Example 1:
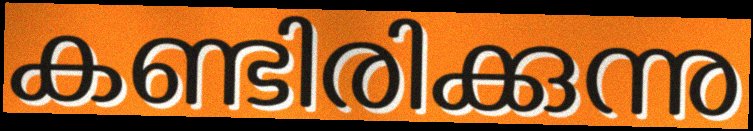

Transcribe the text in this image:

കണ്ടിരിക്കുന്നു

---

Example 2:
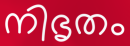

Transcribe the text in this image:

നിഭൃതം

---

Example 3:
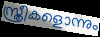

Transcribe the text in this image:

സ്ത്രീകളൊന്നും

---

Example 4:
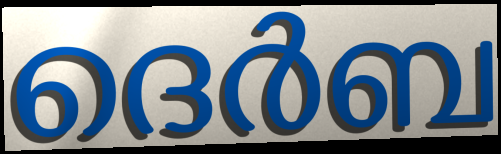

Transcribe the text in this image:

ദെർബ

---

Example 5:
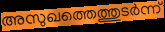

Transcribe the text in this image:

അസുഖത്തെത്തുടർന്ന്